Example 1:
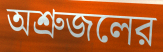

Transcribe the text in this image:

অশ্রুজলের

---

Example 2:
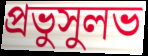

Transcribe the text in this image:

প্রভুসুলভ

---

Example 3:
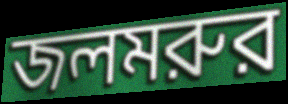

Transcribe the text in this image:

জলমরুর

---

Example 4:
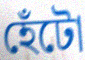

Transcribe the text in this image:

হেঁটো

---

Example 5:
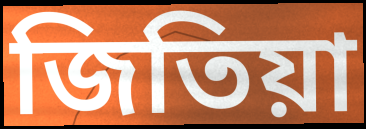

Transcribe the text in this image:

জিতিয়া